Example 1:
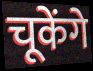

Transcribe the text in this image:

चूकेंगे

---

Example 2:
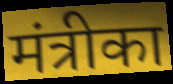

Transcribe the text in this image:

मंत्रीका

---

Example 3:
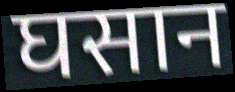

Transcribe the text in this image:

घसान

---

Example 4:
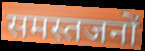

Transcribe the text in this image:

समस्तजनों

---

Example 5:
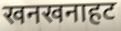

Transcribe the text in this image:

खनखनाहट